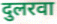
दुलरवा